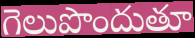
గెలుపొందుతూ